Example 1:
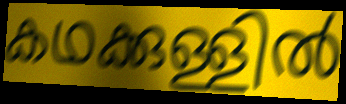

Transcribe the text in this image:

കഥക്കുള്ളിൽ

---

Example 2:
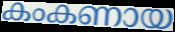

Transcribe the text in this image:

കംകണായ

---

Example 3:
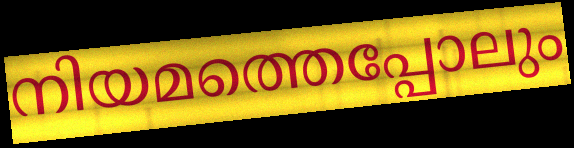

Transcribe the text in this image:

നിയമത്തെപ്പോലും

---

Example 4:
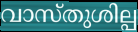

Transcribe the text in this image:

വാസ്തുശില്പ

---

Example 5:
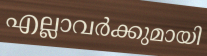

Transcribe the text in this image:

എല്ലാവർക്കുമായി